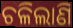
ଚଳିଲାଣି